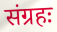
संग्रहः